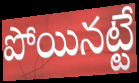
పోయినట్టే